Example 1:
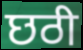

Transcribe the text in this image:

छठी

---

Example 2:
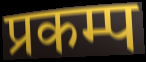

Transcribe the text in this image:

प्रकम्प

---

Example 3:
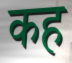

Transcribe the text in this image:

कह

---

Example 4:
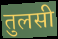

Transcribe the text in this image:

तुलसी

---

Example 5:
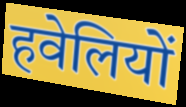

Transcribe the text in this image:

हवेलियों